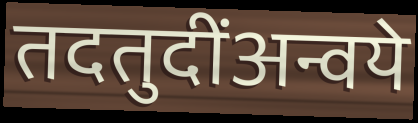
तदतुदींअन्वये